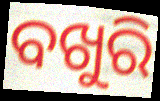
ବଖୁରି